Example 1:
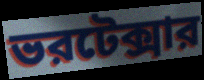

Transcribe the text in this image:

ভরটেক্সার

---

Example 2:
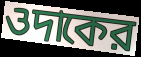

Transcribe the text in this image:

ওদাকের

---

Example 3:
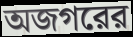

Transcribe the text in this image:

অজগরের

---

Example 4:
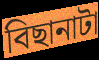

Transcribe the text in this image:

বিছানাটা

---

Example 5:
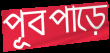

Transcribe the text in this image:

পূবপাড়ে